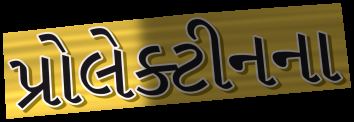
પ્રોલેક્ટીનના